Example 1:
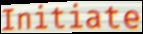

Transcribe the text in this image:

Initiate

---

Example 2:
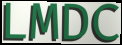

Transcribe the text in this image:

LMDC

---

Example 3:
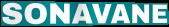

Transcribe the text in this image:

SONAVANE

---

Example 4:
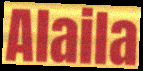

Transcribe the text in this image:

Alaila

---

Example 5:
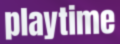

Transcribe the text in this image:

playtime